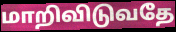
மாறிவிடுவதே